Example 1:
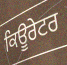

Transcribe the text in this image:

ਕਿਊਰੇਟਰ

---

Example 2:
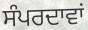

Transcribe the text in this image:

ਸੰਪਰਦਾਵਾਂ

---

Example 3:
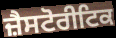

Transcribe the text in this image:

ਜ਼ੈਸਟੋਰੀਟਿਕ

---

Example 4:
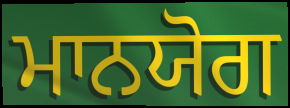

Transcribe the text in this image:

ਮਾਨਯੋਗ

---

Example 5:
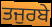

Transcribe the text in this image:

ਤਜੁਰਬੇ